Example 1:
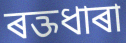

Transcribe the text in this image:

ৰক্তধাৰা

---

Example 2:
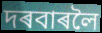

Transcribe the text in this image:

দৰবাৰলৈ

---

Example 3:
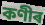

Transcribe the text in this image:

কণীৰ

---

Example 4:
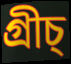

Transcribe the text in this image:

গ্ৰীচ্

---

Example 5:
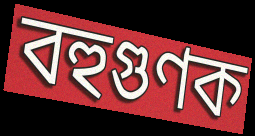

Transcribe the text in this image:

বহুগুণক